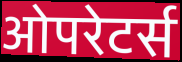
ओपरेटर्स